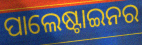
ପାଲେଷ୍ଟାଇନର